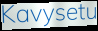
Kavysetu